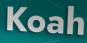
Koah